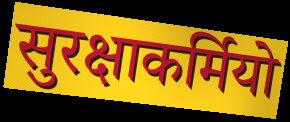
सुरक्षाकर्मियो